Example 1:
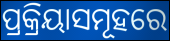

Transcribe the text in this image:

ପ୍ରକ୍ରିୟାସମୂହରେ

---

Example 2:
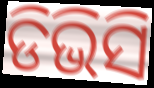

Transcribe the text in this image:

ଡିଭିସି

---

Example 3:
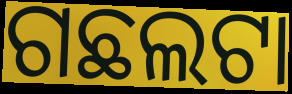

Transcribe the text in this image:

ଗଛଲଟା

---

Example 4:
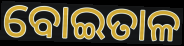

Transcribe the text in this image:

ବୋଇତାଳ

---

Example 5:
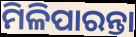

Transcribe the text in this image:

ମିଳିପାରନ୍ତା